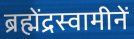
ब्रह्मेंद्रस्वामीनें